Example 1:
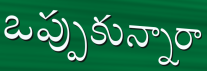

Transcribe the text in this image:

ఒప్పుకున్నారా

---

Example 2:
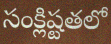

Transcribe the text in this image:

సంక్లిష్టతలో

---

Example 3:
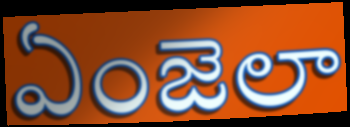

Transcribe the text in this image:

ఏంజెలా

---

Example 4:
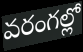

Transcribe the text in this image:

వరంగల్లో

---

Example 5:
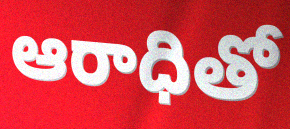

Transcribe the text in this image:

ఆరాధితో